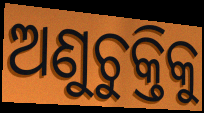
ଅଣୁଚୁକ୍ତିକୁ